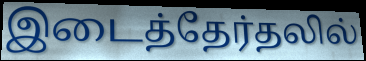
இடைத்தேர்தலில்